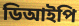
ডিআইপি